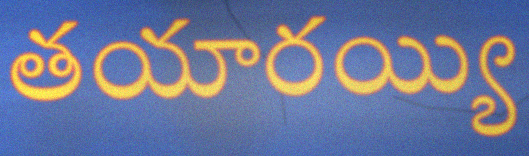
తయారయ్యి